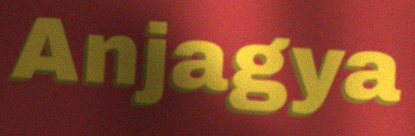
Anjagya